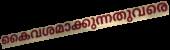
കൈവശമാക്കുന്നതുവരെ